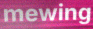
mewing